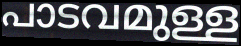
പാടവമുള്ള